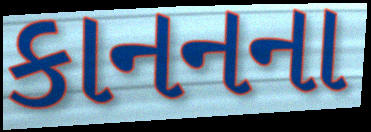
કાનનના